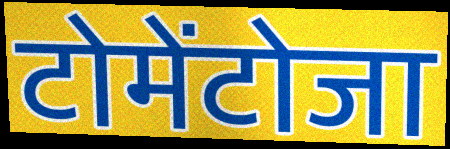
टोमेंटोजा